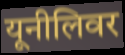
यूनीलिवर